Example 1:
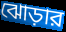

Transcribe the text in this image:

ঝোড়ার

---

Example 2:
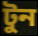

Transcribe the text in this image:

টুন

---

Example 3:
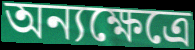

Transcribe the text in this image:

অন্যক্ষেত্রে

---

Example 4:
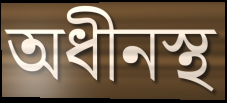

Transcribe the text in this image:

অধীনস্থ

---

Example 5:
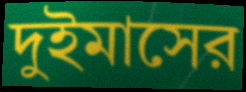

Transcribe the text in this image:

দুইমাসের